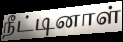
நீட்டினாள்